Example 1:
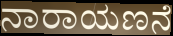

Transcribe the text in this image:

ನಾರಾಯಣನೆ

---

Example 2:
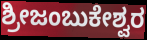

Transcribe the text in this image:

ಶ್ರೀಜಂಬುಕೇಶ್ವರ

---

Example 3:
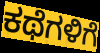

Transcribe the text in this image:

ಕಥೆಗಳಿಗೆ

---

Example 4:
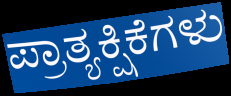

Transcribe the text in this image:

ಪ್ರಾತ್ಯಕ್ಷಿಕೆಗಳು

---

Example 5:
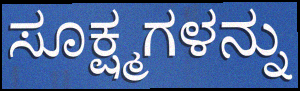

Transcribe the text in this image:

ಸೂಕ್ಷ್ಮಗಳನ್ನು